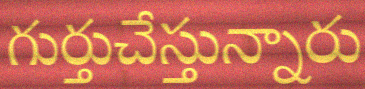
గుర్తుచేస్తున్నారు